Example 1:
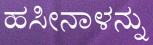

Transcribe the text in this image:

ಹಸೀನಾಳನ್ನು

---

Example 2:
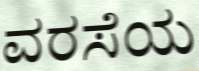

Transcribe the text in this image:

ವರಸೆಯ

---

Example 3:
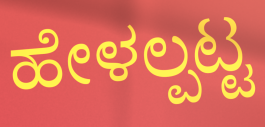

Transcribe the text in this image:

ಹೇಳಲ್ಪಟ್ಟ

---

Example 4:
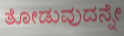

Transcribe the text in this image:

ತೋಡುವುದನ್ನೇ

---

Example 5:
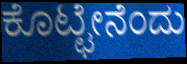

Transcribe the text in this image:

ಕೊಟ್ಟೇನೆಂದು